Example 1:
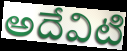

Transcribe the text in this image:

అదేవిటి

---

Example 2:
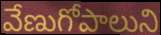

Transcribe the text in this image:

వేణుగోపాలుని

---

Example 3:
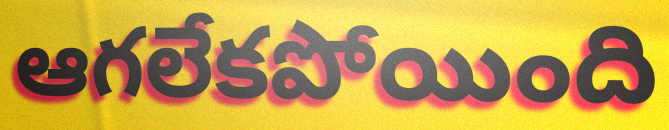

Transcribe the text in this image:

ఆగలేకపోయింది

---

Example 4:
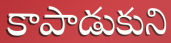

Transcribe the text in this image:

కాపాడుకుని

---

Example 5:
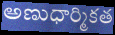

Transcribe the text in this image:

అణుధార్మికత